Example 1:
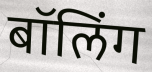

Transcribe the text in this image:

बॉलिंग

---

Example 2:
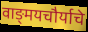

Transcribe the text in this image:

वाङ्मयचौर्याचे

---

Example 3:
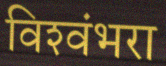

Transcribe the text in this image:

विश्वंभरा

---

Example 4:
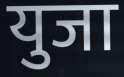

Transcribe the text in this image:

युजा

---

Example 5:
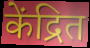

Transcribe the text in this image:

केंद्रित